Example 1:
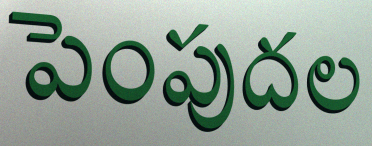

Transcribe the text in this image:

పెంపుదల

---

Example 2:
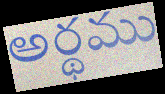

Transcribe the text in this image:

అర్థము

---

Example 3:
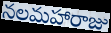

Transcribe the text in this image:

నలమహారాజు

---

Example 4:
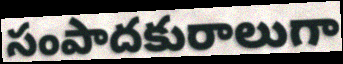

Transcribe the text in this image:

సంపాదకురాలుగా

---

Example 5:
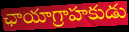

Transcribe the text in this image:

ఛాయాగ్రాహకుడు